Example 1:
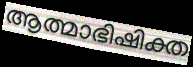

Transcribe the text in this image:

ആത്മാഭിഷിക്ത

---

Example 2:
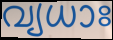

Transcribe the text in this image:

വ്യധാഃ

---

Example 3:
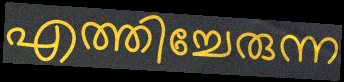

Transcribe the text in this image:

എത്തിച്ചേരുന്ന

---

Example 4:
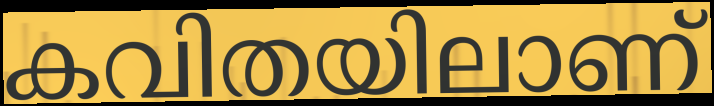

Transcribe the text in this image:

കവിതയിലാണ്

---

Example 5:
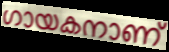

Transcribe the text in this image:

ഗായകനാണ്